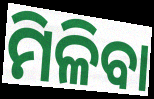
ମିଳିବା